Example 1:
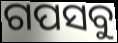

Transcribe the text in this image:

ଗପସବୁ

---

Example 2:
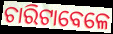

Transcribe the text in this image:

ଚାରିଟାବେଳେ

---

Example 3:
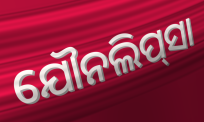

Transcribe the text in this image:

ଯୌନଲିପ୍‌ସା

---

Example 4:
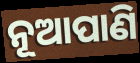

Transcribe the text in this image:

ନୂଆପାଣି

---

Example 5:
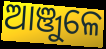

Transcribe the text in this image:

ଆଞ୍ଜୁଳେ